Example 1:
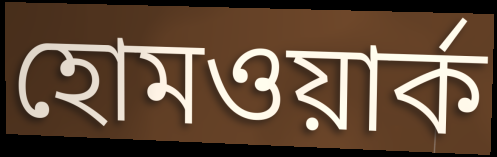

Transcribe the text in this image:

হোমওয়ার্ক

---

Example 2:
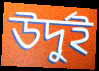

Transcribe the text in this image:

উর্দুই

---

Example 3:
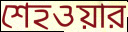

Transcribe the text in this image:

শেহওয়ার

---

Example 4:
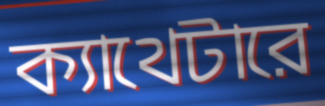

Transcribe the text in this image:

ক্যাথেটারে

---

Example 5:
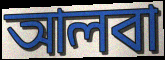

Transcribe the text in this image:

আলবা